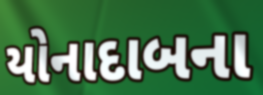
યોનાદાબના